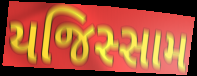
યજિસ્સામ